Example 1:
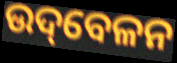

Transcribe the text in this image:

ଉଦ୍‌ବେଳନ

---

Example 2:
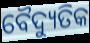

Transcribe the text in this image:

ବୈଦ୍ୟୁତିକ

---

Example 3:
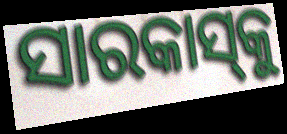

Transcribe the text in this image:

ସାରକାସ୍‌କୁ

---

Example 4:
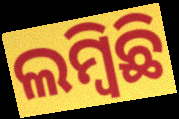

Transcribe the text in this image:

ଲମ୍ବିଛି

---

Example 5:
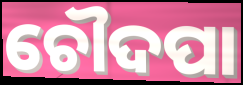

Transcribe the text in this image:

ଚୌଦପା